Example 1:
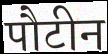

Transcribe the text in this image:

पौटीन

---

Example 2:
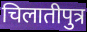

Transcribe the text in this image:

चिलातीपुत्र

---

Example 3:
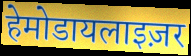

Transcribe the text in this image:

हेमोडायलाइज़र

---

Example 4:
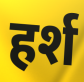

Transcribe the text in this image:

हर्श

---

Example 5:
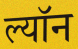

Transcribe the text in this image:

ल्यॉन